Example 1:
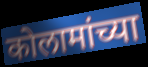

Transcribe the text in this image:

कोलामांच्या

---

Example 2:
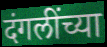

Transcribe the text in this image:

दंगलींच्या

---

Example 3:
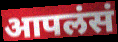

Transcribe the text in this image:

आपलंसं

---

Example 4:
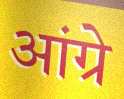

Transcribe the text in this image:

आंग्रे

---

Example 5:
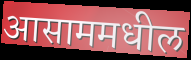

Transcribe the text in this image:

आसाममधील